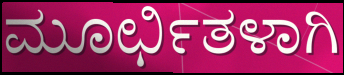
ಮೂರ್ಛಿತಳಾಗಿ